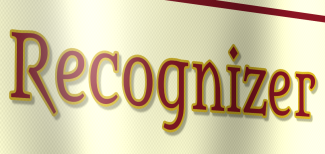
Recognizer